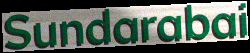
Sundarabai